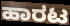
ಹಾರಟ